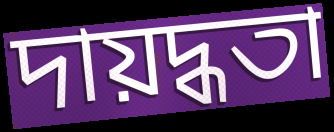
দায়দ্ধতা